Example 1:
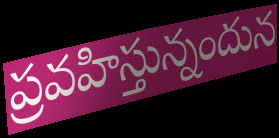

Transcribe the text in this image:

ప్రవహిస్తున్నందున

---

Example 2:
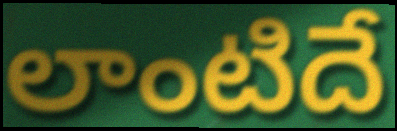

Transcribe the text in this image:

లాంటిదే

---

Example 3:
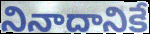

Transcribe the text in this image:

నినాదానికే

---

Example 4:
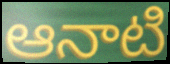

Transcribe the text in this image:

ఆనాటి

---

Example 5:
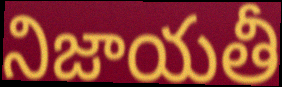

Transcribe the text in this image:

నిజాయతీ